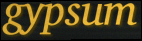
gypsum